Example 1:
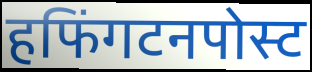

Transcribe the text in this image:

हफिंगटनपोस्ट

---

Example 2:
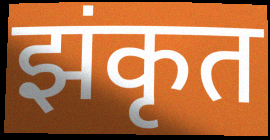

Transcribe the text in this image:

झंकृत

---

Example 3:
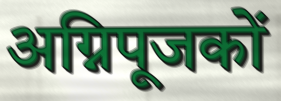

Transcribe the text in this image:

अग्निपूजकों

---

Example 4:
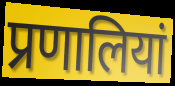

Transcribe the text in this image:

प्रणालियां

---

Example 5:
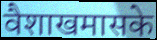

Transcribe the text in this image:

वैशाखमासके